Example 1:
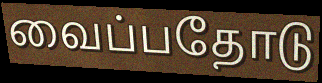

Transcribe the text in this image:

வைப்பதோடு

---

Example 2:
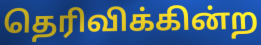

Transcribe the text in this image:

தெரிவிக்கின்ற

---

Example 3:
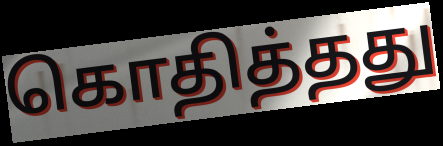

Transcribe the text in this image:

கொதித்தது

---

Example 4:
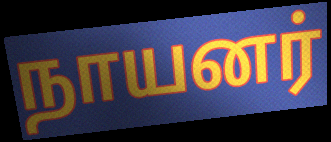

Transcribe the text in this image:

நாயனர்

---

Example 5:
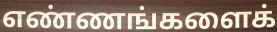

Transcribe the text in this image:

எண்ணங்களைக்